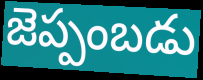
జెప్పంబడు